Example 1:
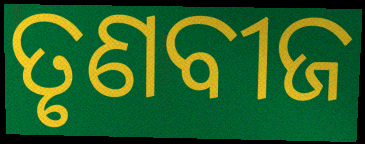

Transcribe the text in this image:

ତୃଣବୀଜ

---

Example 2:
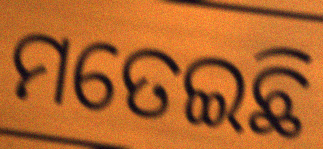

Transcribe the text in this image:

ମତେଇଛି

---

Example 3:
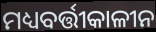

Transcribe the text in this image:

ମଧ୍ୟବର୍ତ୍ତୀକାଳୀନ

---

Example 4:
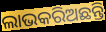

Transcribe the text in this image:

ଲାଭକରିଅଛନ୍ତି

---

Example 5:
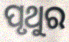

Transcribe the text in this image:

ପୃଥୁର